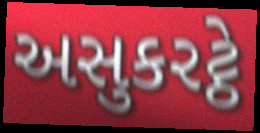
અસુકરટ્ઠે